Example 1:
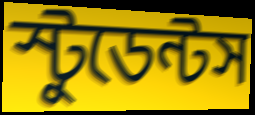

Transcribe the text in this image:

স্টুডেন্টস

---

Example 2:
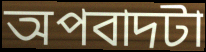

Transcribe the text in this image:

অপবাদটা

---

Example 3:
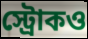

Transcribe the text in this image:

স্ট্রোকও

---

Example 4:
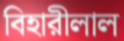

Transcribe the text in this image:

বিহারীলাল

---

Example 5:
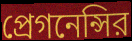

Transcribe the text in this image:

প্রেগনেন্সির